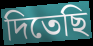
দিতেছি